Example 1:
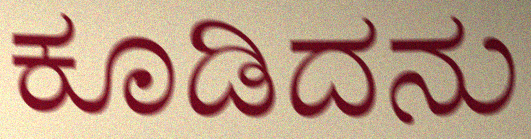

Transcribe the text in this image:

ಕೂಡಿದನು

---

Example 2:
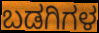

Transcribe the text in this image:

ಬಡಗಿಗಳ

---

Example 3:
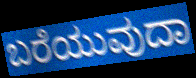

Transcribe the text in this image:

ಬರೆಯುವುದಾ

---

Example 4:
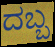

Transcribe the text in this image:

ದಬ್ಬ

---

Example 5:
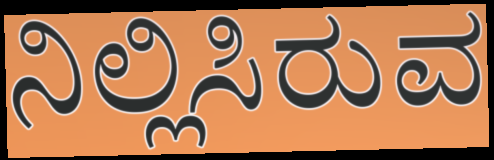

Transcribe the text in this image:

ನಿಲ್ಲಿಸಿರುವ